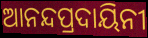
ଆନନ୍ଦପ୍ରଦାୟିନୀ